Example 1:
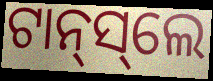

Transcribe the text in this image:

ଟାନ୍‌ସ୍‌ଲେ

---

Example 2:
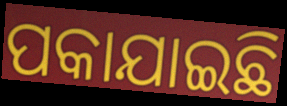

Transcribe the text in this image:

ପକାଯାଇଛି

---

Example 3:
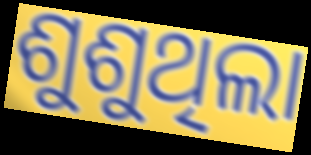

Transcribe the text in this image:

ଶୁଶୁଥିଲା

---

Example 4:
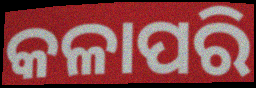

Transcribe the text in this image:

କଳାପରି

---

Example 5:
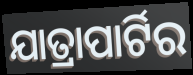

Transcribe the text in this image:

ଯାତ୍ରାପାର୍ଟିର